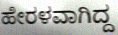
ಹೇರಳವಾಗಿದ್ದ